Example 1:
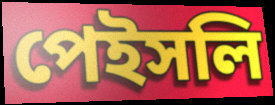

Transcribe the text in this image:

পেইসলি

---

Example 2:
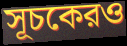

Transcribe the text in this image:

সূচকেরও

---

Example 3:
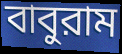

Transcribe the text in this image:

বাবুরাম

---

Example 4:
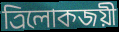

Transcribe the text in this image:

ত্রিলোকজয়ী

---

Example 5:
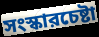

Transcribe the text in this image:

সংস্কারচেষ্টা